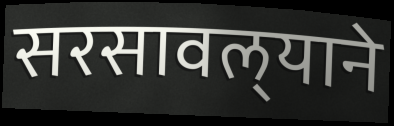
सरसावल्याने